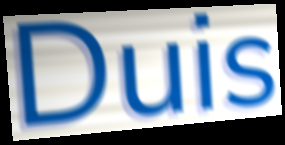
Duis